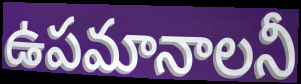
ఉపమానాలనీ